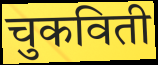
चुकविती